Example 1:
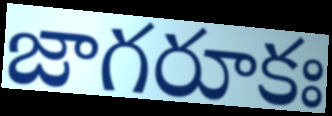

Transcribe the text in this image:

జాగరూకః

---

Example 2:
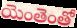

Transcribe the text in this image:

యెంతెంతో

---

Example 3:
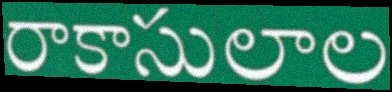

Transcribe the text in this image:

రాకాసులాల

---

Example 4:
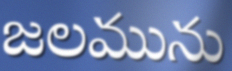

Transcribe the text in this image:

జలమును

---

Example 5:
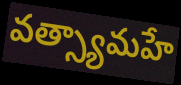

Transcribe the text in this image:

వత్స్యామహే